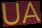
UA